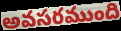
అవసరముంది